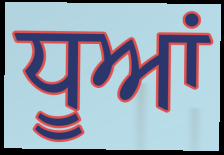
ਧੂਆਂ